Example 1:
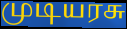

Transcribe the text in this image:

முடியரசு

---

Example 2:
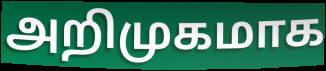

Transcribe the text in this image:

அறிமுகமாக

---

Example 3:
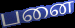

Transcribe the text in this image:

பனை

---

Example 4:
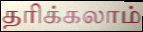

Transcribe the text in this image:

தரிக்கலாம்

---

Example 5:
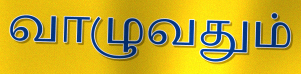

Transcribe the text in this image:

வாழுவதும்